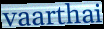
vaarthai